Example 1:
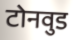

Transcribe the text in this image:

टोनवुड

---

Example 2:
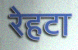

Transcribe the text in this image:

रेहटा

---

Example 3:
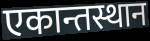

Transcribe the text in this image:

एकान्तस्थान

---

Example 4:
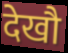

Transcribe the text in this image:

देखौ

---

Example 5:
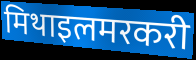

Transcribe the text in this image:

मिथाइलमरकरी